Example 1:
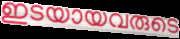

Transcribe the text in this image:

ഇടയായവരുടെ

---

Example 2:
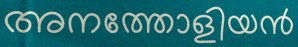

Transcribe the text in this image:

അനത്തോളിയൻ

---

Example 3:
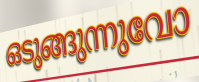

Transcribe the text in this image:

ഒടുങ്ങുന്നുവോ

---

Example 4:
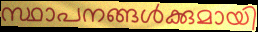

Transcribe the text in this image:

സ്ഥാപനങ്ങൾക്കുമായി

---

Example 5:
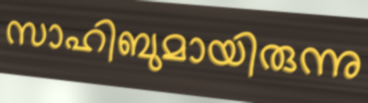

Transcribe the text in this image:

സാഹിബുമായിരുന്നു